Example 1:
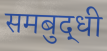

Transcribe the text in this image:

समबुद्धी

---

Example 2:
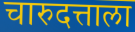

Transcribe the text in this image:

चारुदत्ताला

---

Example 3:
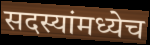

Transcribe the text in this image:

सदस्यांमध्येच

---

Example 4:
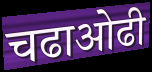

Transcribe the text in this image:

चढाओढी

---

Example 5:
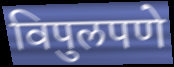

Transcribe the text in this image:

विपुलपणे